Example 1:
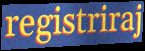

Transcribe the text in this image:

registriraj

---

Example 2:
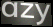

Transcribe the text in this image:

azy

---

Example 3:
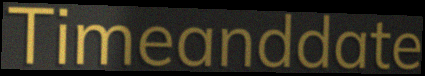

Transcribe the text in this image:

Timeanddate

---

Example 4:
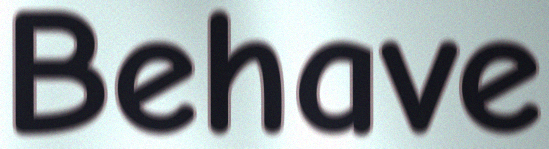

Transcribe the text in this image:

Behave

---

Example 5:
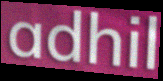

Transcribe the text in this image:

adhil